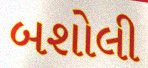
બશોલી